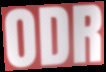
ODR